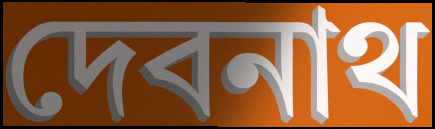
দেবনাথ